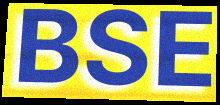
BSE